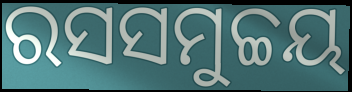
ରସସମୁଚ୍ଚୟ